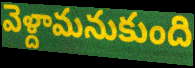
వెళ్దామనుకుంది